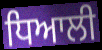
ਧਿਆਲੀ